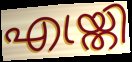
എയ്ത്രി